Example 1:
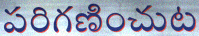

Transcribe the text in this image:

పరిగణించుట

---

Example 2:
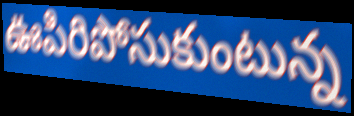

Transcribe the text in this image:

ఊపిరిపోసుకుంటున్న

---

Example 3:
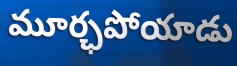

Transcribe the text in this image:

మూర్ఛపోయాడు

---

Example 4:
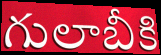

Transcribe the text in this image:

గులాబీకి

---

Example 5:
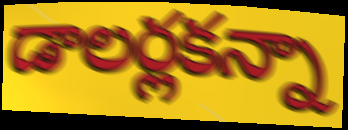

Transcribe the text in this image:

డాలర్లకన్నా